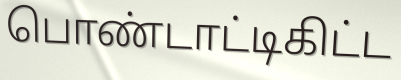
பொண்டாட்டிகிட்ட